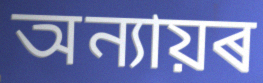
অন্যায়ৰ